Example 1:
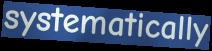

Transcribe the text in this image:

systematically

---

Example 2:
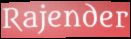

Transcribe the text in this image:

Rajender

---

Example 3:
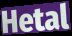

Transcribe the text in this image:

Hetal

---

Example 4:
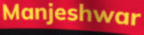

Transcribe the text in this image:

Manjeshwar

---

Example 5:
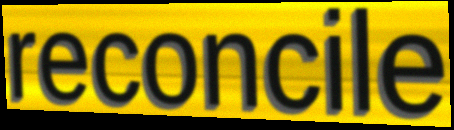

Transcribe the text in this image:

reconcile